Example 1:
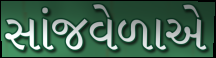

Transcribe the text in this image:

સાંજવેળાએ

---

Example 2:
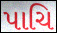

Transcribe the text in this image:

પાચિ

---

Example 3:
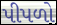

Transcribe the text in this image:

પીપળો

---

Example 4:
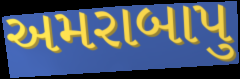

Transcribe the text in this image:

અમરાબાપુ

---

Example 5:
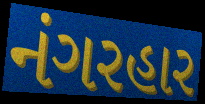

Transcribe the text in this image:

નંગરહાર